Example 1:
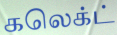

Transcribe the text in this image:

கலெக்ட்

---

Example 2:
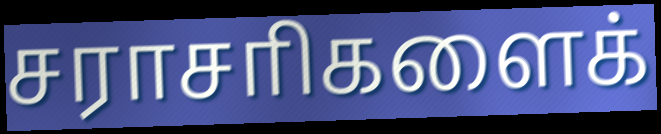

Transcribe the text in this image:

சராசரிகளைக்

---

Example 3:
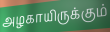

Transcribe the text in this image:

அழகாயிருக்கும்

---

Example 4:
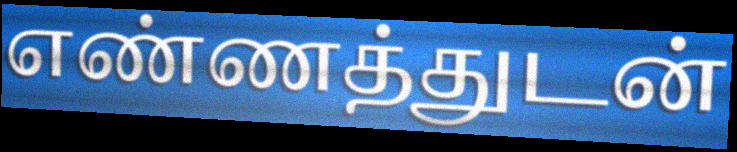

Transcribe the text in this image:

எண்ணத்துடன்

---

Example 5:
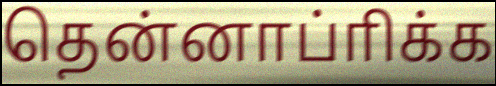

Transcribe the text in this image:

தென்னாப்ரிக்க